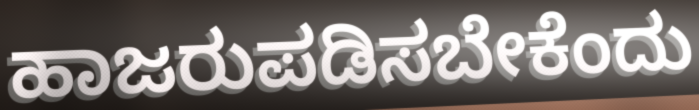
ಹಾಜರುಪಡಿಸಬೇಕೆಂದು